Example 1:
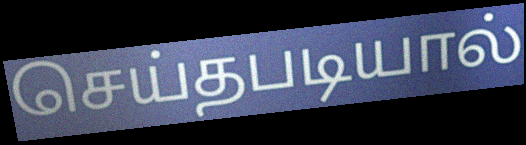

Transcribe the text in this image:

செய்தபடியால்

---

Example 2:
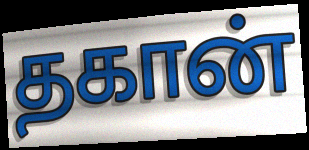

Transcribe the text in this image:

தகான்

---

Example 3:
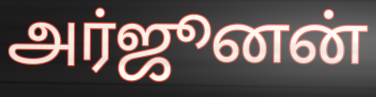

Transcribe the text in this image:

அர்ஜூனன்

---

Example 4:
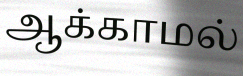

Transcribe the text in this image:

ஆக்காமல்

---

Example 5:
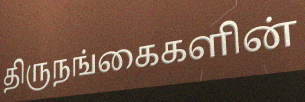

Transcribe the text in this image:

திருநங்கைகளின்